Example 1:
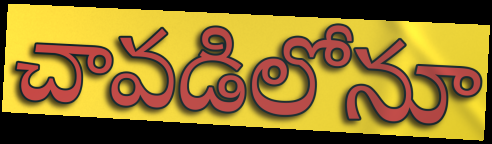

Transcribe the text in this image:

చావడిలోనూ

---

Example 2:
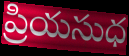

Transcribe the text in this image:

ప్రియసుధ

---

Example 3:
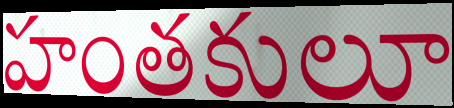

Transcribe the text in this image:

హంతకులూ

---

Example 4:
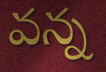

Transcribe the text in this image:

వన్న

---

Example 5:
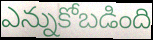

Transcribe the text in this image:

ఎన్నుకోబడింది